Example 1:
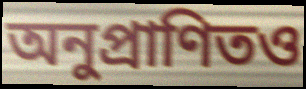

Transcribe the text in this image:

অনুপ্রাণিতও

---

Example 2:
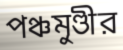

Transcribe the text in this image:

পঞ্চমুণ্ডীর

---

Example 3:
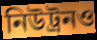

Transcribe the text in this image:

নিউট্রনও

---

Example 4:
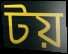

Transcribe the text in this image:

টয়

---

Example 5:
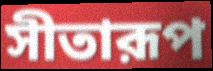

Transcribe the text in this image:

সীতারূপ